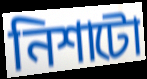
নিশাটো